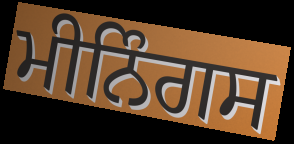
ਮੀਨਿੰਗਸ